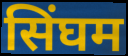
सिंघम